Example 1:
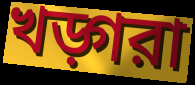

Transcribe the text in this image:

খড়্গরা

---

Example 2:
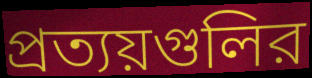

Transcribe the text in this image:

প্রত্যয়গুলির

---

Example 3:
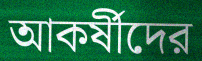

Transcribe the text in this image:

আকর্ষীদের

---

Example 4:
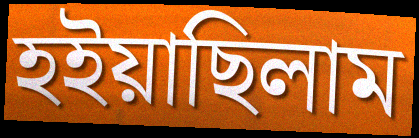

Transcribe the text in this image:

হইয়াছিলাম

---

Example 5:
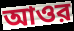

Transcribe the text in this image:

আওর